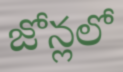
జోన్లలో